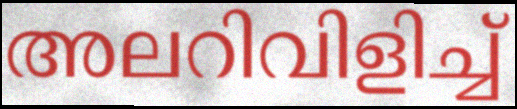
അലറിവിളിച്ച്